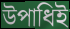
উপাধিই